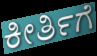
ಕೀರ್ತಿಗೆ